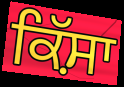
ਕ਼ਿੱਸਾ